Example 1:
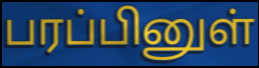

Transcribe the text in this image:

பரப்பினுள்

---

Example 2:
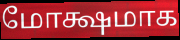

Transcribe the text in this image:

மோக்ஷமாக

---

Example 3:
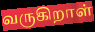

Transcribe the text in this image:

வருகிறாள்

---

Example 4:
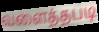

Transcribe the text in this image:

வளைத்தபடி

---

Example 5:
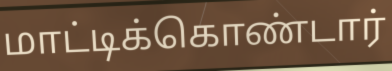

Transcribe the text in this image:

மாட்டிக்கொண்டார்